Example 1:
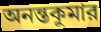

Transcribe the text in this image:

অনন্তকুমার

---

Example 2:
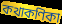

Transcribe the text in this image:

কথাকণিকা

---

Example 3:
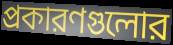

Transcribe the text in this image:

প্রকারণগুলোর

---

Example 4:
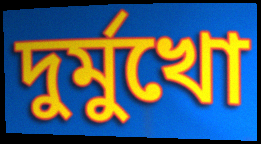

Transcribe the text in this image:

দুর্মুখো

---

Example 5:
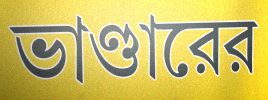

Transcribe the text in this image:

ভাণ্ডারের